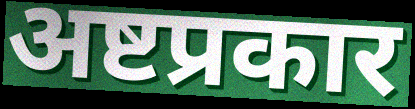
अष्टप्रकार